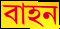
বাহন